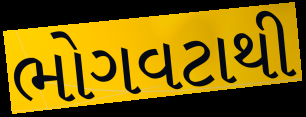
ભોગવટાથી